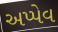
અપ્પેવ